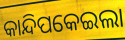
କାନ୍ଦିପକେଇଲା